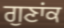
ਗੁਣਾਂਕ